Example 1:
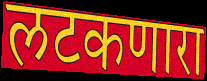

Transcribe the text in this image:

लटकणारा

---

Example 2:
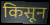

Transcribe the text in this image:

किसून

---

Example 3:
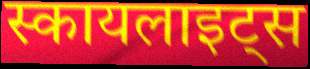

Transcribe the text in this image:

स्कायलाइट्स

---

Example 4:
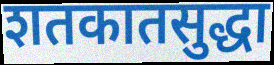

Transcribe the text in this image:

शतकातसुद्धा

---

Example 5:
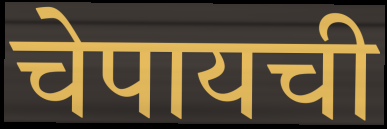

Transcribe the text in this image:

चेपायची